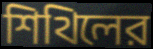
শিথিলের